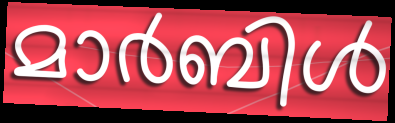
മാർബിൾ